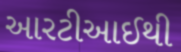
આરટીઆઈથી